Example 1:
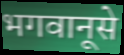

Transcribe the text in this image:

भगवानूसे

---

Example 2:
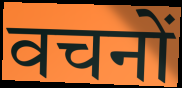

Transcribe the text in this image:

वचनों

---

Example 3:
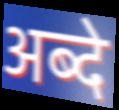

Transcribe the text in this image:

अब्दे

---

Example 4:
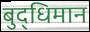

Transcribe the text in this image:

बुद्धिमान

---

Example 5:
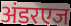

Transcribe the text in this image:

अंडरएज